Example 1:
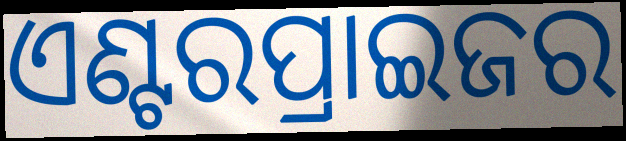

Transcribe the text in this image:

ଏଣ୍ଟରପ୍ରାଇଜର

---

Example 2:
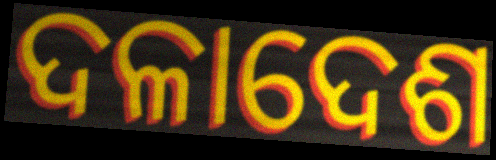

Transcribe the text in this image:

ଦଳାଦେଶ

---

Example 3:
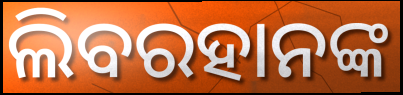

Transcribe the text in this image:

ଲିବରହାନଙ୍କ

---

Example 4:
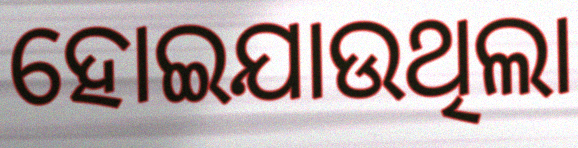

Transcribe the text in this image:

ହୋଇଯାଉଥିଲା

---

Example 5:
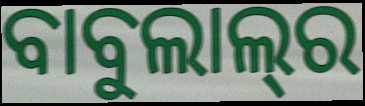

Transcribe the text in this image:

ବାବୁଲାଲ୍‍ର